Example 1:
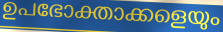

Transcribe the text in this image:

ഉപഭോക്താക്കളെയും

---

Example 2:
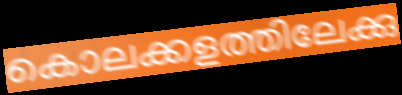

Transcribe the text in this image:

കൊലക്കളത്തിലേക്കു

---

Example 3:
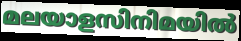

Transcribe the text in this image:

മലയാളസിനിമയിൽ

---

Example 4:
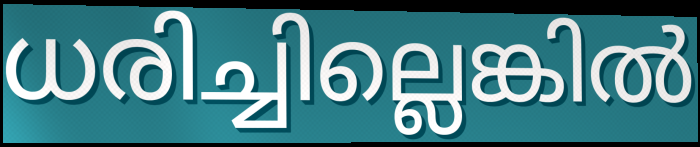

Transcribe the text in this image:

ധരിച്ചില്ലെങ്കിൽ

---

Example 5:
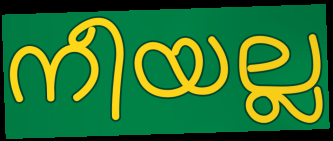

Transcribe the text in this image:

നീയല്ല